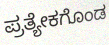
ಪ್ರತ್ಯೇಕಗೊಂಡ